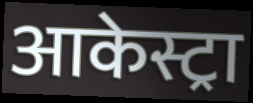
आकेस्ट्रा